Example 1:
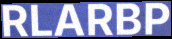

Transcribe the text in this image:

RLARBP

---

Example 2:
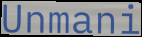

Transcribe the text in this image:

Unmani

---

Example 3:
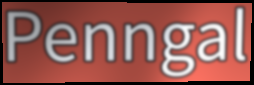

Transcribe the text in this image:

Penngal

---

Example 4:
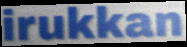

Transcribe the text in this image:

irukkan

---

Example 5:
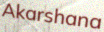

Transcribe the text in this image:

Akarshana